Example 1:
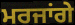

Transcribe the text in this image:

ਮਰਜਾਂਗੇ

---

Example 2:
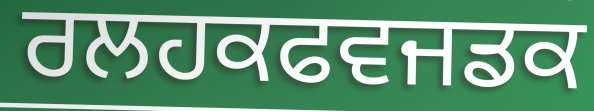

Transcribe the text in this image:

ਰਲਹਕਫਵਜਡਕ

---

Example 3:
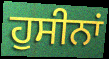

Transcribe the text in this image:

ਹੁਸੀਨਾਂ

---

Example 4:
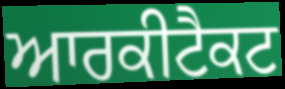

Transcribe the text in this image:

ਆਰਕੀਟੈਕਟ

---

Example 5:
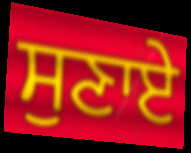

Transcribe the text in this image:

ਸੁਣਾਏ